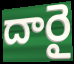
దారై